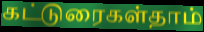
கட்டுரைகள்தாம்